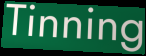
Tinning